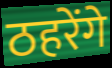
ठहरेंगे